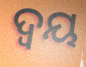
ଦ୍ୱୟ